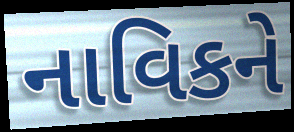
નાવિકને